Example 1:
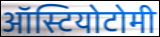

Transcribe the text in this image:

ऑस्टियोटोमी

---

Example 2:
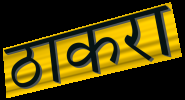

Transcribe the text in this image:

ठाकरा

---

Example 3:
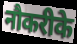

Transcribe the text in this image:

नौकरीके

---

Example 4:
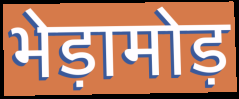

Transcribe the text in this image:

भेड़ामोड़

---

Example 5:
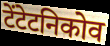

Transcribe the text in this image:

टेंटेटनिकोव